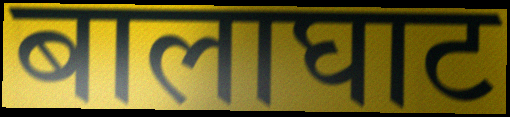
बालाघाट